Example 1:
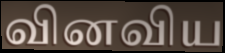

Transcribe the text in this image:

வினவிய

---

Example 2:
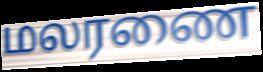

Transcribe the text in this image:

மலரணை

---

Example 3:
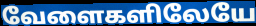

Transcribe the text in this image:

வேளைகளிலேயே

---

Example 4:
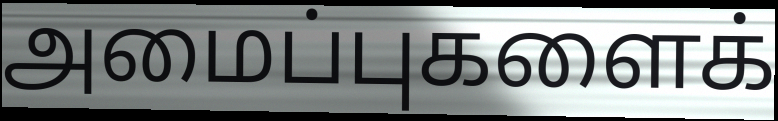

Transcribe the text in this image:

அமைப்புகளைக்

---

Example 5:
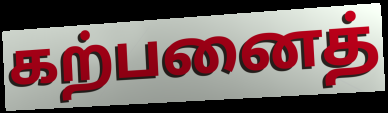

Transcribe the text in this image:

கற்பனைத்